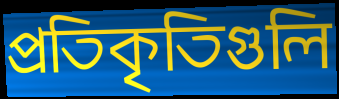
প্রতিকৃতিগুলি